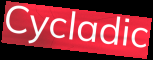
Cycladic